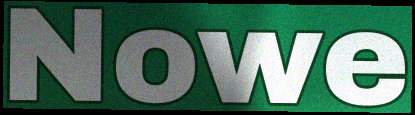
Nowe